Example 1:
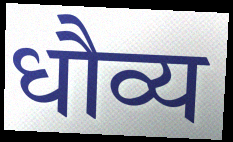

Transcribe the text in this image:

धौव्य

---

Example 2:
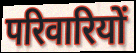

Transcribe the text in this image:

परिवारियों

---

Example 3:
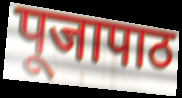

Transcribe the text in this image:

पूजापाठ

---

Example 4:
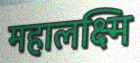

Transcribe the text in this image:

महालक्ष्मि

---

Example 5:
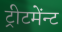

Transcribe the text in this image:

ट्रीटमेंन्ट